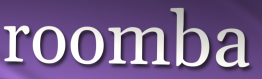
roomba